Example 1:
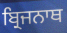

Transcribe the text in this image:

ਬ੍ਰਿਜਨਾਥ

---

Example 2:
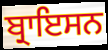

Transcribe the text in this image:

ਬ੍ਰਾਇਸਨ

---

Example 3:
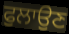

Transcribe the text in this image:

ਫੁਲਾਉਣ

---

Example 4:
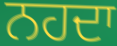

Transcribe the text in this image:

ਨਹਦਾ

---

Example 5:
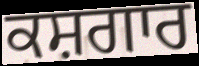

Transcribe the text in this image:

ਕਸ਼ਗਾਰ